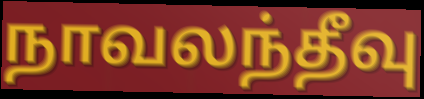
நாவலந்தீவு